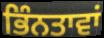
ਭਿੰਨਤਾਵਾਂ